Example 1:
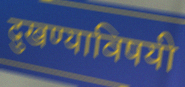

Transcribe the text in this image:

दुखण्याविषयी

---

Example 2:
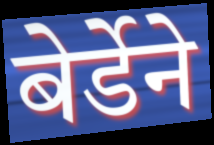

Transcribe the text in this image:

बेर्डेने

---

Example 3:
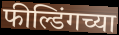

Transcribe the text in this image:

फील्डिंगच्या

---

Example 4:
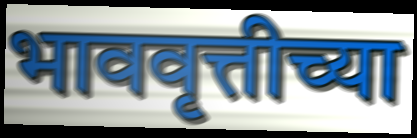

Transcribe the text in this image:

भाववृत्तीच्या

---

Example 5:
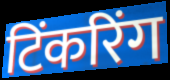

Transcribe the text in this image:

टिंकरिंग